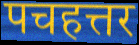
पचहत्तर